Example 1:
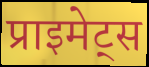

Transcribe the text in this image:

प्राइमेट्स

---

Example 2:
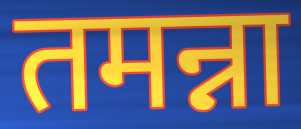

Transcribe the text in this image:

तमन्ना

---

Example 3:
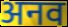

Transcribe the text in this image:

अनव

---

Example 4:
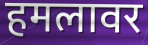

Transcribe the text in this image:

हमलावर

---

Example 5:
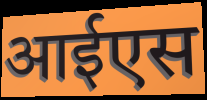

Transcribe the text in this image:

आईएस